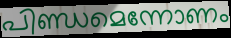
പിണ്ഡമെന്നോണം